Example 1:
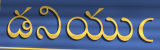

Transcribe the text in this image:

డనియుఁ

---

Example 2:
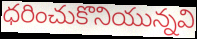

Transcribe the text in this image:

ధరించుకొనియున్నవి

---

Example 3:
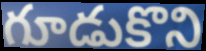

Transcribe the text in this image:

గూడుకొని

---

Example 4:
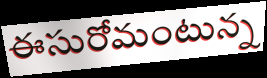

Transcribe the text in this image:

ఈసురోమంటున్న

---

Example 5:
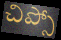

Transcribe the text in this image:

చిప్సో